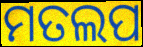
ମତଲପ